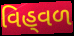
વિહ્‌વળ